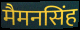
मैमनसिंह